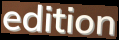
edition